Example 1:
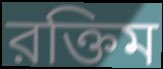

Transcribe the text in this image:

রক্তিম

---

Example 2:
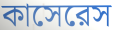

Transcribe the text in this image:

কাসেরেস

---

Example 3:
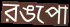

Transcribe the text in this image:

রঙপো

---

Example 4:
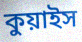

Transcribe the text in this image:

কুয়াইস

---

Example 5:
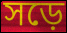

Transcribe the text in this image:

সড়ে